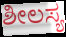
ಶೀಲಸ್ಯ